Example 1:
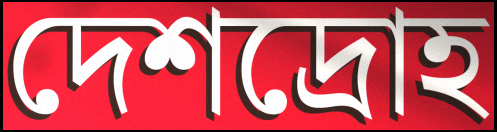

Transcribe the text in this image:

দেশদ্রোহ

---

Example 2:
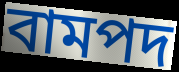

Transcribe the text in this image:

বামপদ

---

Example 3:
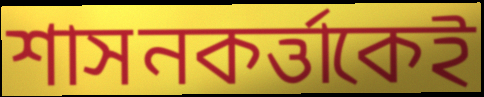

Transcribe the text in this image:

শাসনকর্ত্তাকেই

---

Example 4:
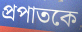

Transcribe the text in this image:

প্রপাতকে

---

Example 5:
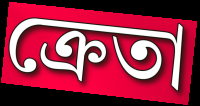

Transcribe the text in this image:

ক্রেতা